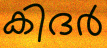
കിദർ